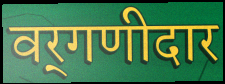
वर्गणीदार